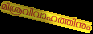
മിശ്രവിവാഹത്തിനും